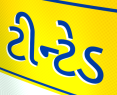
ટીન્ટેડ